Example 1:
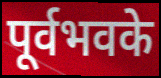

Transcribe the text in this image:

पूर्वभवके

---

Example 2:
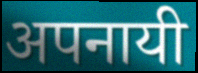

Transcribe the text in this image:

अपनायी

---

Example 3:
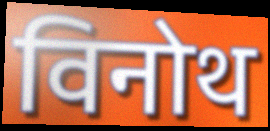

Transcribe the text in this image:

विनोथ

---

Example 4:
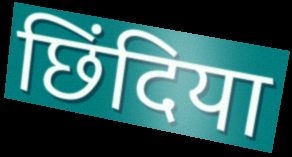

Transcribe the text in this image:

छिंदिया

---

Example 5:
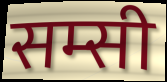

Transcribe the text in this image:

सम्सी